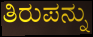
ತಿರುಪನ್ನು